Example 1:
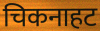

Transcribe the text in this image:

चिकनाहट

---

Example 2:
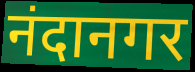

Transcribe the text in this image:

नंदानगर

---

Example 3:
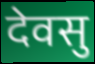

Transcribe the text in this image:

देवसु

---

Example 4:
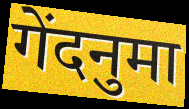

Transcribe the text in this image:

गेंदनुमा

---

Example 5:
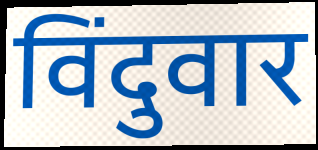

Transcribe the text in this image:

विंदुवार